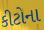
કીટોના